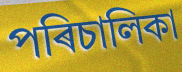
পৰিচালিকা